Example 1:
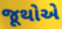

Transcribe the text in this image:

જૂથોએ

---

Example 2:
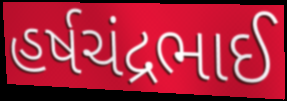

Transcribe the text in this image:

હર્ષચંદ્રભાઈ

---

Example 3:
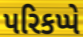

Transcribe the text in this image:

પરિકપ્પે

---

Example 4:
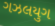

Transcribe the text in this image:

ગઝલયુગ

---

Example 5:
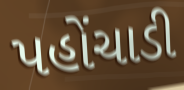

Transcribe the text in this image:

પહોંચાડી